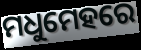
ମଧୁମେହରେ